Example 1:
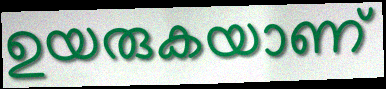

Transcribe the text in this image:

ഉയരുകയാണ്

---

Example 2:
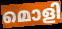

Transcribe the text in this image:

മൊളി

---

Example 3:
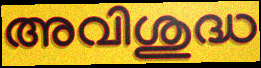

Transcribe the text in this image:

അവിശുദ്ധ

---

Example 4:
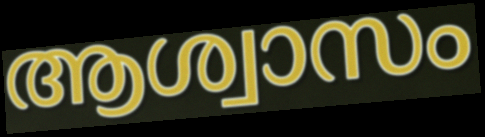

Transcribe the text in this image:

ആശ്വാസം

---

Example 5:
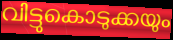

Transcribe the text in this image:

വിട്ടുകൊടുക്കയും